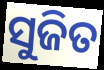
ସୁଜିତ